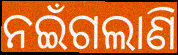
ନଇଁଗଲାଣି